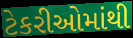
ટેકરીઓમાંથી